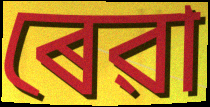
ৰেৱা